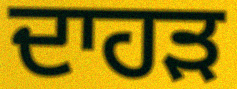
ਦਾਹੜ